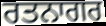
ਰਤਨਾਗਰ